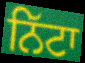
ਨਿੱਟਾ